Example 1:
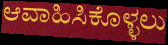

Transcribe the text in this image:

ಆವಾಹಿಸಿಕೊಳ್ಳಲು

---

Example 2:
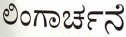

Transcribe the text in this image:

ಲಿಂಗಾರ್ಚನೆ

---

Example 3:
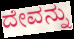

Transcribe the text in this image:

ದೇವನ್ನು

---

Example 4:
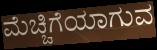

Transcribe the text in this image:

ಮೆಚ್ಚಿಗೆಯಾಗುವ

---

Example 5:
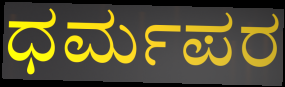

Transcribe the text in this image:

ಧರ್ಮಪರ